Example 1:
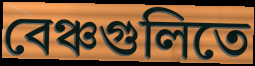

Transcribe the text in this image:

বেঞ্চগুলিতে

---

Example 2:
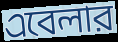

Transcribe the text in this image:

এবেলার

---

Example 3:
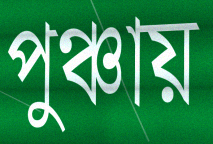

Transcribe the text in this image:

পুঞ্চায়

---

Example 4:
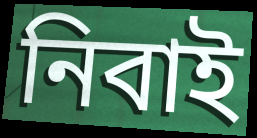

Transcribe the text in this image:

নিবাই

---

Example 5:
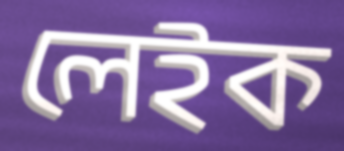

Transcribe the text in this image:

লেইক